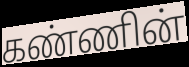
கண்ணின்